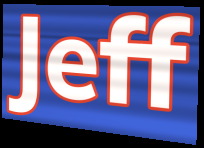
Jeff